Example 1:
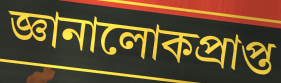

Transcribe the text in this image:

জ্ঞানালোকপ্রাপ্ত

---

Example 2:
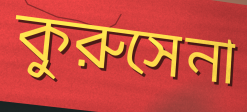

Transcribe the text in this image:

কুরুসেনা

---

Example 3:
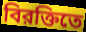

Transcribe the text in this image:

বিরক্তিতে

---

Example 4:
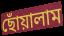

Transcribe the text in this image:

ছোঁয়ালাম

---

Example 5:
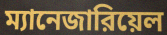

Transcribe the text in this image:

ম্যানেজারিয়েল